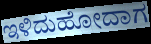
ಇಳಿದುಹೋದಾಗ